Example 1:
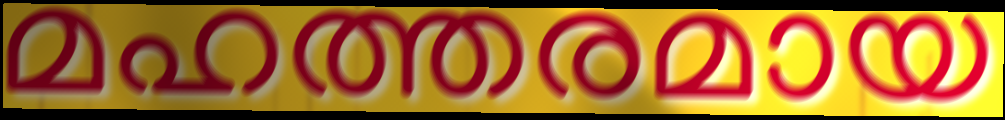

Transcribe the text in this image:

മഹത്തരമായ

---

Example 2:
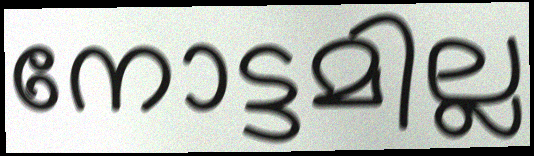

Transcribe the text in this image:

നോട്ടമില്ല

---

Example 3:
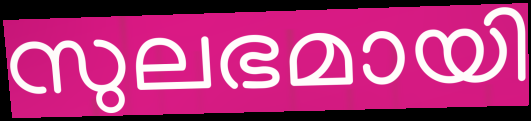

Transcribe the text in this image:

സുലഭമായി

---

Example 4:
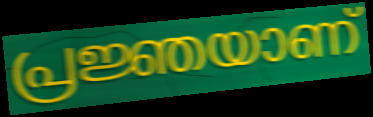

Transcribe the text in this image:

പ്രജ്ഞയാണ്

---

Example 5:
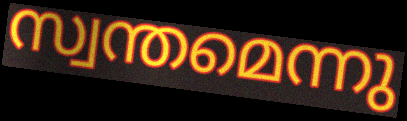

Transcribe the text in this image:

സ്വന്തമെന്നു